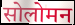
सोलोमन